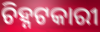
ଚିହ୍ନଟକାରୀ